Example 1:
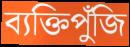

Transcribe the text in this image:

ব্যক্তিপুঁজি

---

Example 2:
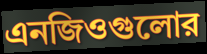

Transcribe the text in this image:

এনজিওগুলোর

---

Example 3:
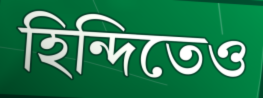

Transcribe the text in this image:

হিন্দিতেও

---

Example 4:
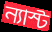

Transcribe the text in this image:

ন্যাস্ট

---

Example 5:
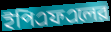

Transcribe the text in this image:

ইপিএফএলের